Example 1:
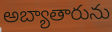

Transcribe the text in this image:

అబ్యాతారును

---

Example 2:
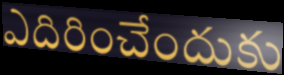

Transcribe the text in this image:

ఎదిరించేందుకు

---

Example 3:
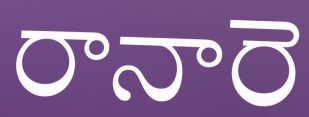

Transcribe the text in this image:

రానారె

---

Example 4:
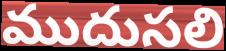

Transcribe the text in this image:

ముదుసలి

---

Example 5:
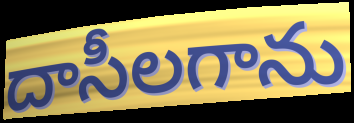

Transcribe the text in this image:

దాసీలగాను